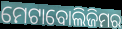
ମେଟାବୋଲିଜିମର